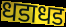
धडाधड